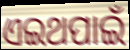
ଏଇଥପାଇଁ